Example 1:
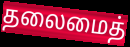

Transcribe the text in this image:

தலைமைத்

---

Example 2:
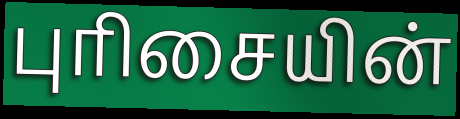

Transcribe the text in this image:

புரிசையின்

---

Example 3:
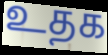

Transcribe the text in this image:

உதக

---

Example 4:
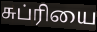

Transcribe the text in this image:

சுப்ரியை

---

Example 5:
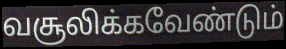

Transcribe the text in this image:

வசூலிக்கவேண்டும்